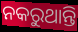
ନକରୁଥାନ୍ତି